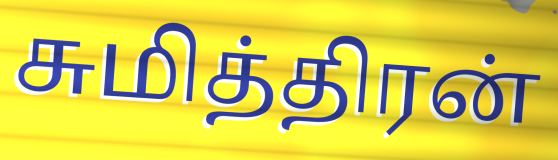
சுமித்திரன்